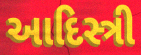
આદિસ્ત્રી